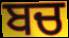
ਬਚ